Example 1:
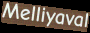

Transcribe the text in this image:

Melliyaval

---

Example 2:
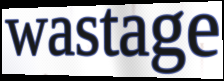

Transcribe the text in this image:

wastage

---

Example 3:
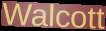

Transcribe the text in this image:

Walcott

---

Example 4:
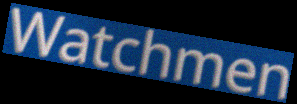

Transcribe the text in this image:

Watchmen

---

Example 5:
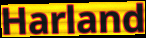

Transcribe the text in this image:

Harland